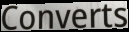
Converts